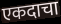
एकदाचा